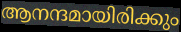
ആനന്ദമായിരിക്കും